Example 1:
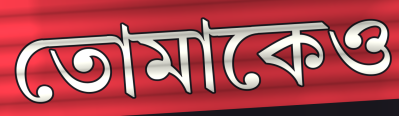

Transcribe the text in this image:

তোমাকেও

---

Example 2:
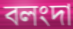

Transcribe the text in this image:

বলংদা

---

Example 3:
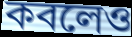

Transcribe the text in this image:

কবলেও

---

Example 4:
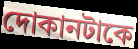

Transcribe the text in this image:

দোকানটাকে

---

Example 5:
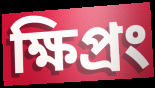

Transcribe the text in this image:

ক্ষিপ্রং